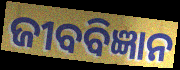
ଜୀବବିଜ୍ଞାନ